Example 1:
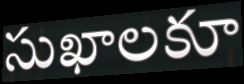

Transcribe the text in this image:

సుఖాలకూ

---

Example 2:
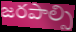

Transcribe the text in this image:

జరపాల్సి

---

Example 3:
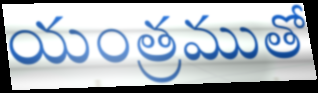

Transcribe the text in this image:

యంత్రముతో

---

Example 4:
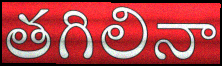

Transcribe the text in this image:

తగిలినా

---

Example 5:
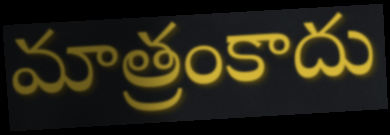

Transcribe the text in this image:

మాత్రంకాదు